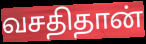
வசதிதான்